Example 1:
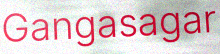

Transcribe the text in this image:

Gangasagar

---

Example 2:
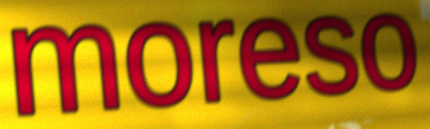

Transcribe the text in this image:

moreso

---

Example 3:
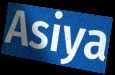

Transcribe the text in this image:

Asiya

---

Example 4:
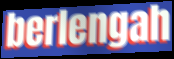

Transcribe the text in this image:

berlengah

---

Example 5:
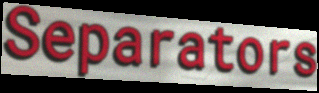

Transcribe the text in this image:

Separators